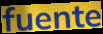
fuente